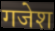
गजेश